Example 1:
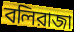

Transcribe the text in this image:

বলিরাজা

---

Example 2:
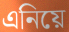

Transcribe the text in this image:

এনিয়ে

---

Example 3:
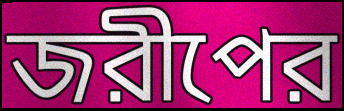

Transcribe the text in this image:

জরীপের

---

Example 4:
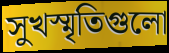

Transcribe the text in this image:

সুখস্মৃতিগুলো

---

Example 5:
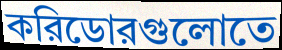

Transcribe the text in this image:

করিডোরগুলোতে